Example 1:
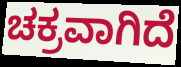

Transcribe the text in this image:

ಚಕ್ರವಾಗಿದೆ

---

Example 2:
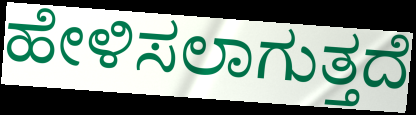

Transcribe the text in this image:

ಹೇಳಿಸಲಾಗುತ್ತದೆ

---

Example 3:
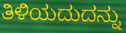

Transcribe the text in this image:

ತಿಳಿಯದುದನ್ನು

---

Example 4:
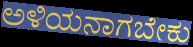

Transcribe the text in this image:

ಅಳಿಯನಾಗಬೇಕು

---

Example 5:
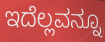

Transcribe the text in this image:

ಇದೆಲ್ಲವನ್ನೂ